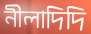
নীলাদিদি